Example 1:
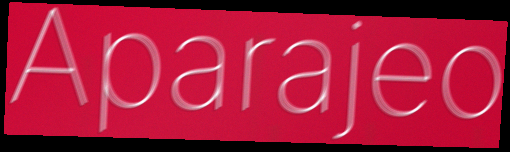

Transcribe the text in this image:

Aparajeo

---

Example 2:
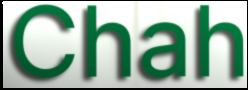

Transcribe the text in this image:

Chah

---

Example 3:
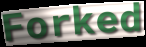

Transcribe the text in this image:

Forked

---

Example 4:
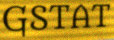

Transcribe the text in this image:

GSTAT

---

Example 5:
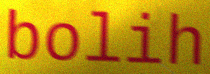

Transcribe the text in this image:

bolih